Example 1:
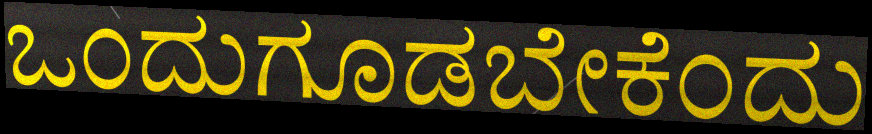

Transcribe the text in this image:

ಒಂದುಗೂಡಬೇಕೆಂದು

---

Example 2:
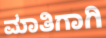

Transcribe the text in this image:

ಮಾತಿಗಾಗಿ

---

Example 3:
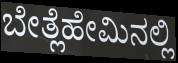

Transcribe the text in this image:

ಬೇತ್ಲೆಹೇಮಿನಲ್ಲಿ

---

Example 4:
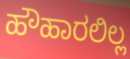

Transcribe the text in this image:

ಹೌಹಾರಲಿಲ್ಲ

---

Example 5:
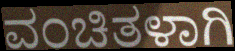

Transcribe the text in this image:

ವಂಚಿತಳಾಗಿ